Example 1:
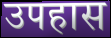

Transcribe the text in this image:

उपहास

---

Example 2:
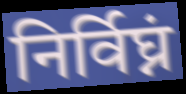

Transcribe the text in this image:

निर्विघ्नं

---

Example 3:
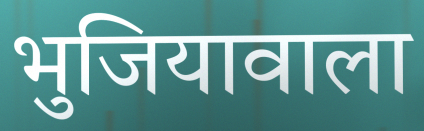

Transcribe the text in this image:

भुजियावाला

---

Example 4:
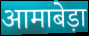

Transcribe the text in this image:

आमाबेड़ा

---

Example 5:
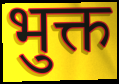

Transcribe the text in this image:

भुक्त